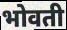
भोवती